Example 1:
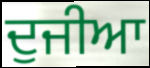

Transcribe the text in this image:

ਦੁਜੀਆ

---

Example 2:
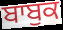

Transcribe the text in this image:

ਬਾਬੁਕ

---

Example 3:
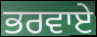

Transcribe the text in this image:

ਭਰਵਾਏ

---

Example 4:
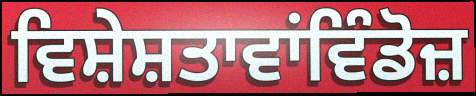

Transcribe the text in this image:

ਵਿਸ਼ੇਸ਼ਤਾਵਾਂਵਿੰਡੋਜ਼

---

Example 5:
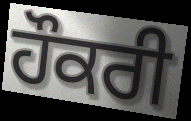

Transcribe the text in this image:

ਹੌਕਰੀ